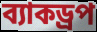
ব্যাকড্রপ